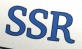
SSR